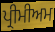
ਪ੍ਰੀਮੀਅਮ